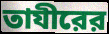
তাযীরের